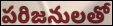
పరిజనులతో